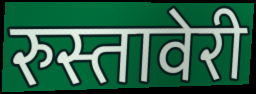
रुस्तावेरी